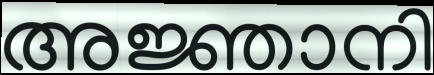
അജ്ഞാനി